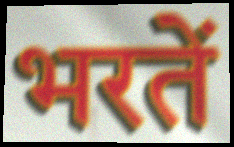
भरतें